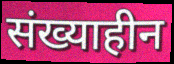
संख्याहीन